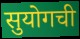
सुयोगची